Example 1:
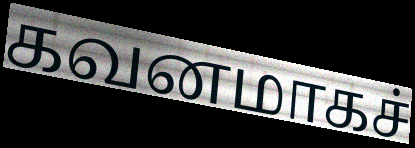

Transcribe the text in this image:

கவனமாகச்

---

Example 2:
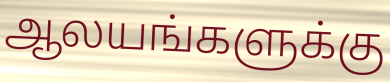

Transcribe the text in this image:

ஆலயங்களுக்கு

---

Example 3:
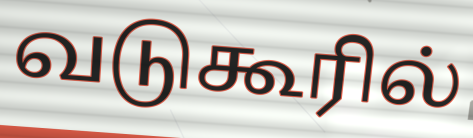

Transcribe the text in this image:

வடுகூரில்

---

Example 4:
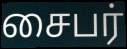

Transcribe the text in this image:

சைபர்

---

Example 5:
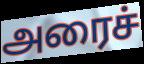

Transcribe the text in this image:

அரைச்